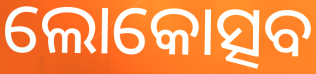
ଲୋକୋତ୍ସବ